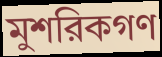
মুশরিকগণ